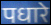
पधारे